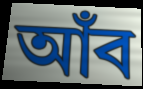
আঁব